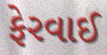
ફેરવાઈ